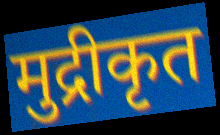
मुद्रीकृत